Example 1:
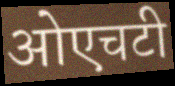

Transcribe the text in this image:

ओएचटी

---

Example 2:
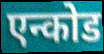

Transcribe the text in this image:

एन्कोड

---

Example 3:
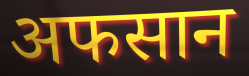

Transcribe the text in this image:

अफसान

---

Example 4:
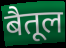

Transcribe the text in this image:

बैतूल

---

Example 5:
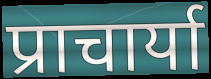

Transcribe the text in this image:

प्राचार्या